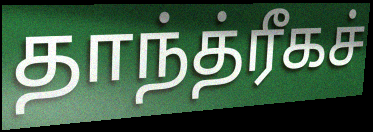
தாந்த்ரீகச்